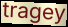
tragey